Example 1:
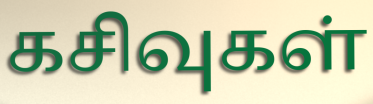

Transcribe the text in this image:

கசிவுகள்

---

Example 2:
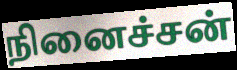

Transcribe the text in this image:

நினைச்சன்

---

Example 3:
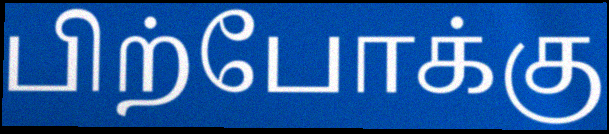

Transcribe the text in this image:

பிற்போக்கு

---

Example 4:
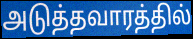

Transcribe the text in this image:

அடுத்தவாரத்தில்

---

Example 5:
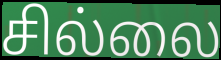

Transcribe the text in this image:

சில்லை